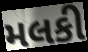
મલકી